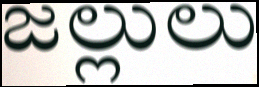
జల్లులు